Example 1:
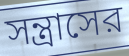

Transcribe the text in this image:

সন্ত্রাসের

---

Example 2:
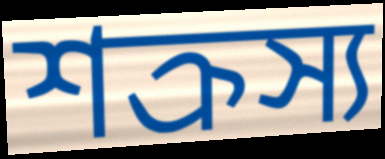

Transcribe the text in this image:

শক্রস্য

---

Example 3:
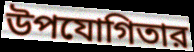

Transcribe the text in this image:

উপযোগিতার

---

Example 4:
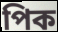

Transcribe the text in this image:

পিক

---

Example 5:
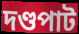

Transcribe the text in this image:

দণ্ডপাট